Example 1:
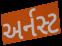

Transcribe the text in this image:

અર્નસ્ટ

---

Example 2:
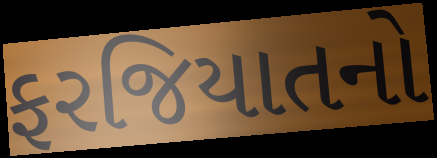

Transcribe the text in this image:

ફરજિયાતનો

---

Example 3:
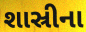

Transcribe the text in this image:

શાસ્રીના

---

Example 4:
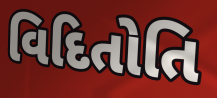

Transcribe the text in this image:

વિદિતોતિ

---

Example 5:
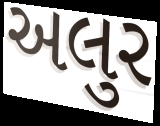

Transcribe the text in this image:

અલુર